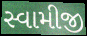
સ્વામીજી